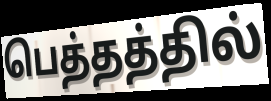
பெத்தத்தில்